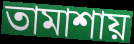
তামাশায়